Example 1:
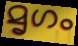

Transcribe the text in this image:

മൃഗം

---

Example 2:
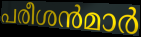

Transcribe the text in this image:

പരീശൻമാർ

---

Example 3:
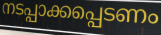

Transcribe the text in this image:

നടപ്പാക്കപ്പെടണം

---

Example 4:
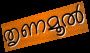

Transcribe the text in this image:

തൃണമൂൽ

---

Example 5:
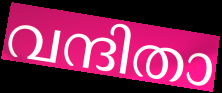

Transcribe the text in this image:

വന്ദിതാ